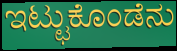
ಇಟ್ಟುಕೊಂಡೆನು